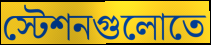
স্টেশনগুলোতে